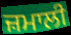
ਜ਼ਮਾਲੀ